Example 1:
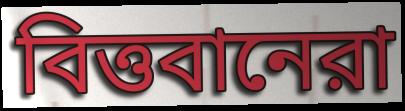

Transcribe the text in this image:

বিত্তবানেরা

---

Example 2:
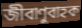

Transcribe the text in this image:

জীবাণুবাহক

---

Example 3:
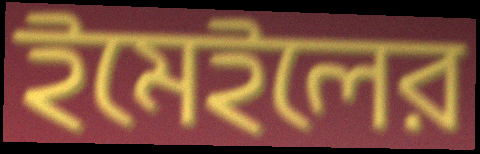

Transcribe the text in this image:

ইমেইলের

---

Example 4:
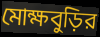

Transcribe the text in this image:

মোক্ষবুড়ির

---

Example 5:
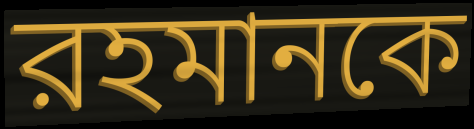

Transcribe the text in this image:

রহমানকে